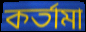
কর্তামা